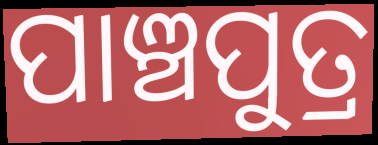
ପାଞ୍ଚପୁତ୍ର